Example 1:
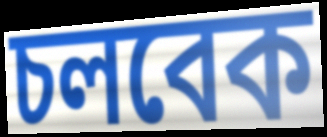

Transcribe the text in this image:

চলবেক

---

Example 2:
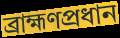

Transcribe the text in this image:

ব্রাহ্মণপ্রধান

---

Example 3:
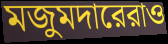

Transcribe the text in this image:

মজুমদারেরাও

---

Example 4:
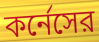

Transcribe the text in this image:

কর্নেসের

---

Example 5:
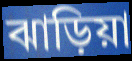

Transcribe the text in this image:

ঝাড়িয়া